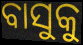
ବାସୁକୁ